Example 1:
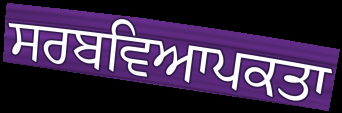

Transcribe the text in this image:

ਸਰਬਵਿਆਪਕਤਾ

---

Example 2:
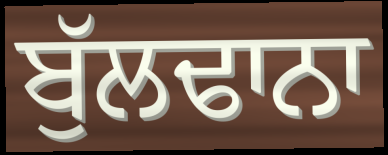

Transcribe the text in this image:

ਬੁੱਲਢਾਨਾ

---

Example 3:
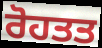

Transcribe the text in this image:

ਰੋਹਤਤ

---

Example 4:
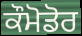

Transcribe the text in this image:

ਕੌਮੋਡੋਰ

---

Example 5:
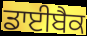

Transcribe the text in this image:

ਡਾਈਬੈਕ